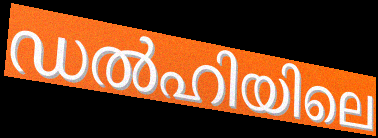
ഡൽഹിയിലെ